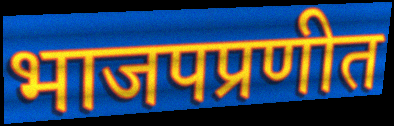
भाजपप्रणीत